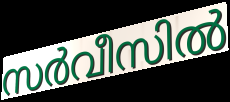
സർവീസിൽ